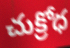
చుక్రోధ